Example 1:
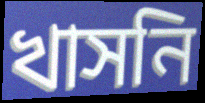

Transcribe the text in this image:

খাসনি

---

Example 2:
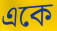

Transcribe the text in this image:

একে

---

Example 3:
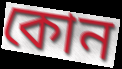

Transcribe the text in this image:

কোন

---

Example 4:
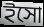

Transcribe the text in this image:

ইসো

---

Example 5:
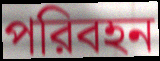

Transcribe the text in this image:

পরিবহন